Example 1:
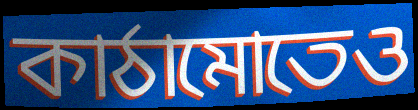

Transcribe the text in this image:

কাঠামোতেও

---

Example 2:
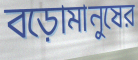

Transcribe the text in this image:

বড়োমানুষের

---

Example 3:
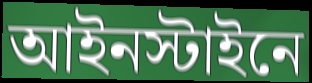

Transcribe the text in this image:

আইনস্টাইনে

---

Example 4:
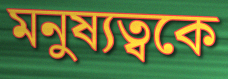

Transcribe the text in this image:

মনুষ্যত্বকে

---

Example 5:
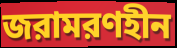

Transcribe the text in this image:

জরামরণহীন